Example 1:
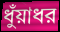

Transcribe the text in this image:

ধুঁয়াধর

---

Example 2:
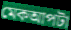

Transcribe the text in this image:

মেকআপটা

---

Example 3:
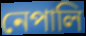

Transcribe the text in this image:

নেপালি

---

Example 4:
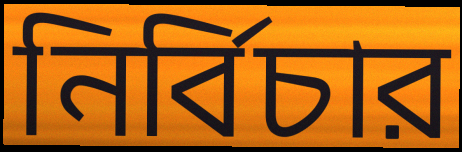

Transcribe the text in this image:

নির্বিচার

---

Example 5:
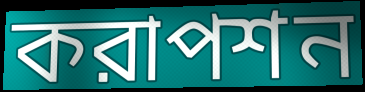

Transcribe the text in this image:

করাপশন